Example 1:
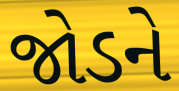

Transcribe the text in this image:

જોડને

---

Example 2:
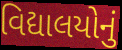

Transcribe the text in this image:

વિદ્યાલયોનું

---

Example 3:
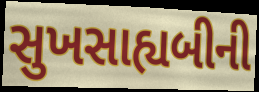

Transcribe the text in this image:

સુખસાહ્યબીની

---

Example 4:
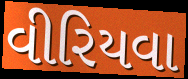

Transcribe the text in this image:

વીરિયવા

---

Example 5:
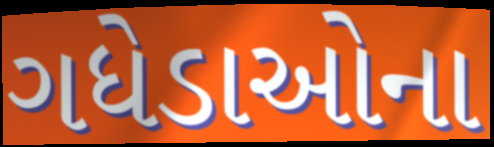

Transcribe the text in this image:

ગધેડાઓના